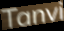
Tanvi